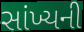
સાંખ્યની